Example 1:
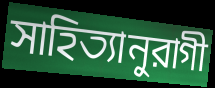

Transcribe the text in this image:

সাহিত্যানুরাগী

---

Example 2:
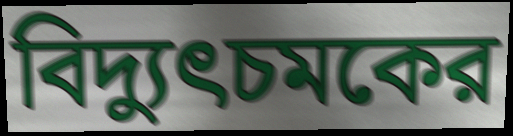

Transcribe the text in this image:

বিদ্যুৎচমকের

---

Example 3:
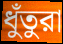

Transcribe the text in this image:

ধুঁতুরা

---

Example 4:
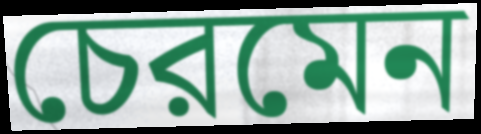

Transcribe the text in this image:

চেরমেন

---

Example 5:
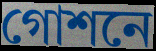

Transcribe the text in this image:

গোশনে